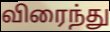
விரைந்து